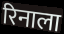
रिनाला